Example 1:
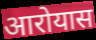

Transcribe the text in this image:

आरोयास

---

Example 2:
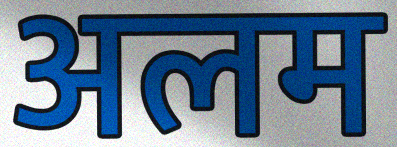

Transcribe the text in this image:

अलम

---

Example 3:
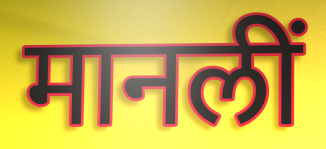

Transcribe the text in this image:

मानलीं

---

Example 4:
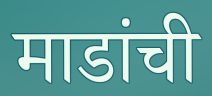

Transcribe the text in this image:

माडांची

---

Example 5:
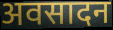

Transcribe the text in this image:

अवसादन